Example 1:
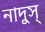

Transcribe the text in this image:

নাদুস্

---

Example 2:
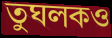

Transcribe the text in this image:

তুঘলকও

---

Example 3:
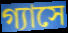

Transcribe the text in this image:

গ্যাসে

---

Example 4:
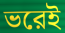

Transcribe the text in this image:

ভরেই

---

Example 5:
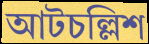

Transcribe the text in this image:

আটচল্লিশ